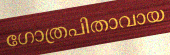
ഗോത്രപിതാവായ